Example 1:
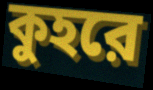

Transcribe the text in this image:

কুহরে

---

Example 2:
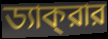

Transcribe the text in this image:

ড্যাক্‌রার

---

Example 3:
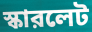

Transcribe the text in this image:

স্কারলেট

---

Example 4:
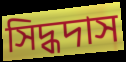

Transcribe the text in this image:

সিদ্ধদাস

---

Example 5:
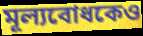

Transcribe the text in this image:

মূল্যবোধকেও